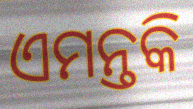
ଏମନ୍ତକି